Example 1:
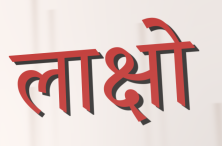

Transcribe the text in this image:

लाक्षो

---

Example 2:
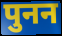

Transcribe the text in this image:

पुनन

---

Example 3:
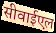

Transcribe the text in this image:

सीवाईएल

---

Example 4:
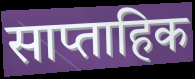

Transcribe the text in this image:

साप्ताहिक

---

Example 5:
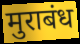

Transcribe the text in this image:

मुराबंध